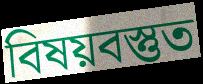
বিষয়বস্তুত